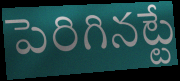
పెరిగినట్టే